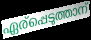
ഏര്പ്പെടുത്താന്